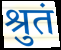
श्रुतं